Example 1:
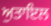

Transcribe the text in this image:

ਅੁਤਾਇਲ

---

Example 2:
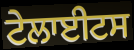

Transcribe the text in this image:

ਟੇਲਾਈਟਸ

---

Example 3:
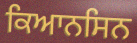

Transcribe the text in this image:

ਕਿਆਨਸਿਨ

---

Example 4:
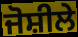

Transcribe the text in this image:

ਜੋਸ਼ੀਲੇ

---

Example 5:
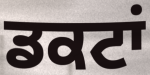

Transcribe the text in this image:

ਡਕਟਾਂ